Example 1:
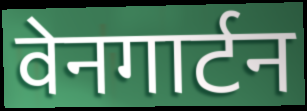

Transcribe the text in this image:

वेनगार्टन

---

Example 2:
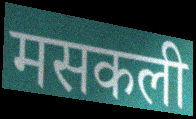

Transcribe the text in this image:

मसकली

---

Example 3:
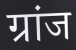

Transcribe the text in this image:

ग्रांज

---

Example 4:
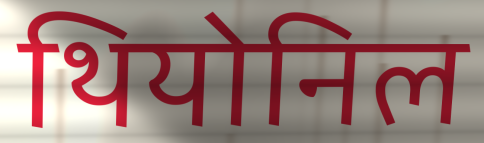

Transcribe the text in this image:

थियोनिल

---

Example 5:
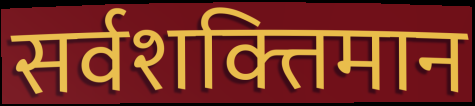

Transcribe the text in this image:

सर्वशक्तिमान